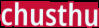
chusthu